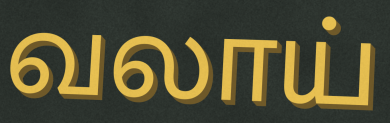
வலாய்